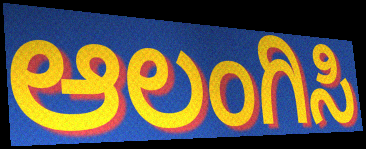
ಆಲಂಗಿಸಿ